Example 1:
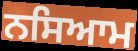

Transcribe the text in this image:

ਨਸਿਆਮ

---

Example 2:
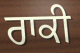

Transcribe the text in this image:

ਰਾਕੀ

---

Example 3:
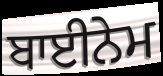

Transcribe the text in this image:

ਬਾਈਨੇਮ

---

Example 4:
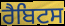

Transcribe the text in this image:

ਰੈਬਿਟਸ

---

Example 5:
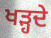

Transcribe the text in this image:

ਖੜ੍ਹਦੇ